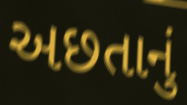
અછતાનું